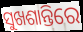
ସୁଖଶାନ୍ତିରେ